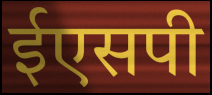
ईएसपी